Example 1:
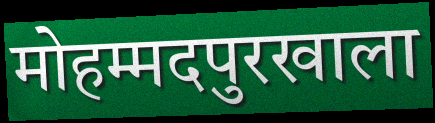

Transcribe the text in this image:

मोहम्मदपुरखाला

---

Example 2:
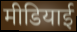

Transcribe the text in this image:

मीडियाई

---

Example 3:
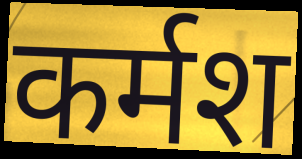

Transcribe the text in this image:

कर्मश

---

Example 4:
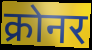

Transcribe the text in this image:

क्रोनर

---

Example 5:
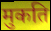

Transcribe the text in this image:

मुकति